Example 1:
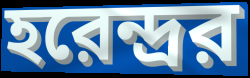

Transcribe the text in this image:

হরেন্দ্রর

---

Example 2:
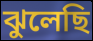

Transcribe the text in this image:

ঝুলেছি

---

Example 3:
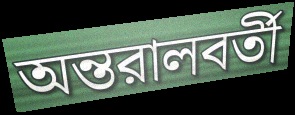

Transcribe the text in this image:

অন্তরালবর্তী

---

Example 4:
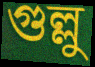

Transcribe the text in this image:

গুল্লু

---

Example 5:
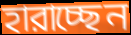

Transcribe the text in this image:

হারাচ্ছেন